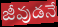
జీవుడనే